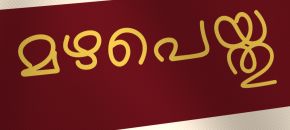
മഴപെയ്തു